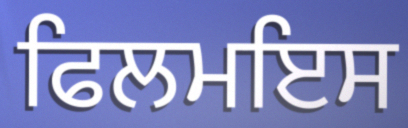
ਫਿਲਮਇਸ